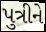
પુત્રીને